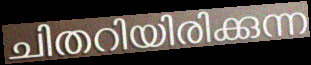
ചിതറിയിരിക്കുന്ന